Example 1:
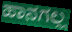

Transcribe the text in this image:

ಹಾನಗಲ್ಲ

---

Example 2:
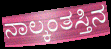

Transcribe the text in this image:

ನಾಲ್ಕಂತಸ್ತಿನ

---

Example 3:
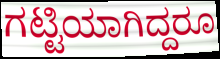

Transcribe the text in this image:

ಗಟ್ಟಿಯಾಗಿದ್ದರೂ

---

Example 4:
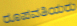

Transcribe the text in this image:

ರೂಪವತಿಯರು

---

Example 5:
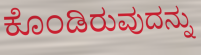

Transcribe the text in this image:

ಕೊಂಡಿರುವುದನ್ನು